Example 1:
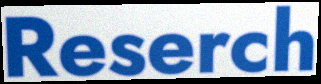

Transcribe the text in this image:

Reserch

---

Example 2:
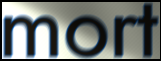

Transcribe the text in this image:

mort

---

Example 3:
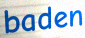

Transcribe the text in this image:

baden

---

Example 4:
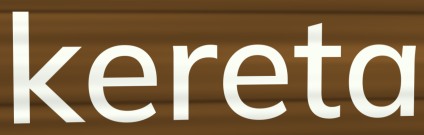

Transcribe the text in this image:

kereta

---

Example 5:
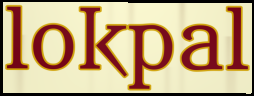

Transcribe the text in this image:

lokpal